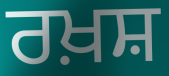
ਰਖ਼ਸ਼